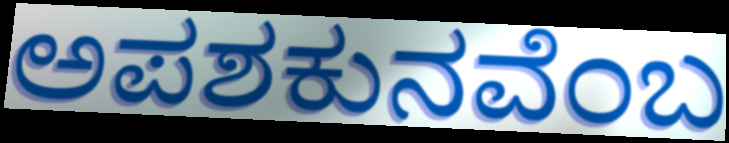
ಅಪಶಕುನವೆಂಬ